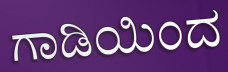
ಗಾಡಿಯಿಂದ